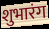
शुभारंग